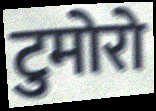
टुमोरो